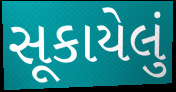
સૂકાયેલું